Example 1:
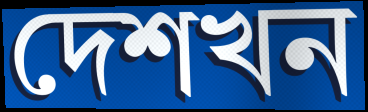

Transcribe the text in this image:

দেশখন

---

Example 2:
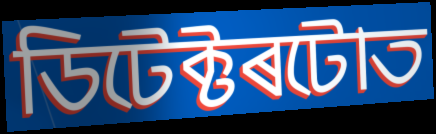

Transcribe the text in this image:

ডিটেক্টৰটোত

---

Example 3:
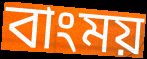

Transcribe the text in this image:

বাংময়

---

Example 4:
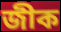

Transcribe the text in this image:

জীক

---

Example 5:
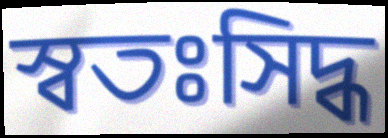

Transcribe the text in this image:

স্বতঃসিদ্ধ